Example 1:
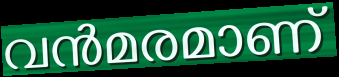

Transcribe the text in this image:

വൻമരമാണ്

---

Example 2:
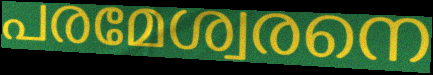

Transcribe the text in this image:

പരമേശ്വരനെ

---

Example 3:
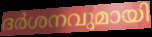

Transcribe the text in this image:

ദർശനവുമായി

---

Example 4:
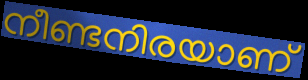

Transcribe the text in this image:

നീണ്ടനിരയാണ്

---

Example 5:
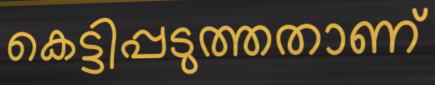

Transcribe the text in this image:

കെട്ടിപ്പടുത്തതാണ്